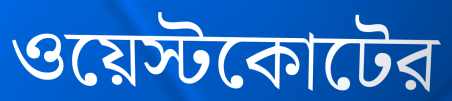
ওয়েস্টকোটের